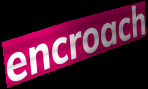
encroach